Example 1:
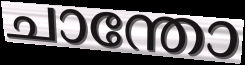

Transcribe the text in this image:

ചാന്തോ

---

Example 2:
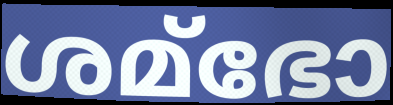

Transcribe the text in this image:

ശമ്ഭോ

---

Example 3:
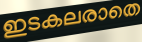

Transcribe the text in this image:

ഇടകലരാതെ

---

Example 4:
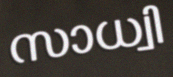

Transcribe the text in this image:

സാധ്വി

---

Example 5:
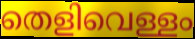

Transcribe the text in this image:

തെളിവെള്ളം